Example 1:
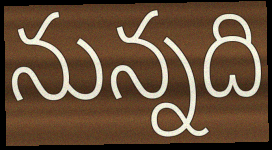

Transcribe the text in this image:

నున్నది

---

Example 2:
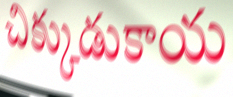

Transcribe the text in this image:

చిక్కుడుకాయ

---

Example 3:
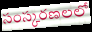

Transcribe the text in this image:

సంస్కరణలలో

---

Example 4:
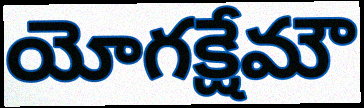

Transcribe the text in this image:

యోగక్షేమౌ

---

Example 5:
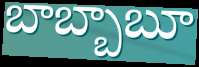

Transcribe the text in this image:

బాబ్బాబూ